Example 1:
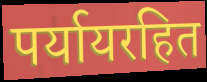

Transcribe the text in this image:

पर्यायरहित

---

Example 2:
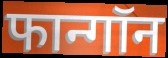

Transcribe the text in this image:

फान्गॉन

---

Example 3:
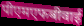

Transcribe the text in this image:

पीएमएफबीवाई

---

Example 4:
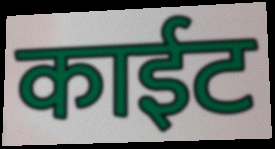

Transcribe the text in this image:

काईट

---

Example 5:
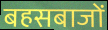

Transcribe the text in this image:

बहसबाजों